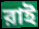
রাই